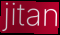
jitan